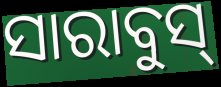
ସାରାବୁସ୍